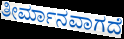
ತೀರ್ಮಾನವಾಗದೆ